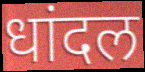
धांदल